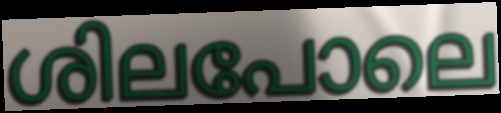
ശിലപോലെ